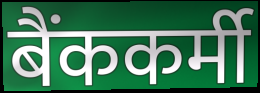
बैंककर्मी